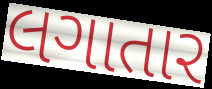
લગાતાર